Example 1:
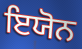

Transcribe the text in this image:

ਇਯੋਨ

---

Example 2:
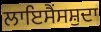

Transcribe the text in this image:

ਲਾਇਸੈਂਸਸ਼ੁਦਾ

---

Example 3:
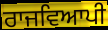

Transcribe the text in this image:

ਰਾਜਵਿਆਪੀ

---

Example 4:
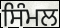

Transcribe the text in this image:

ਸਿੰਮਲ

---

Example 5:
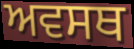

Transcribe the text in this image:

ਅਵਸਥ